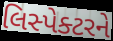
લિસ્પેક્ટરને